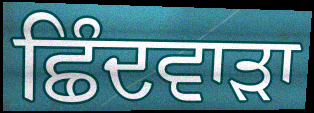
ਛਿੰਦਵਾੜਾ